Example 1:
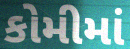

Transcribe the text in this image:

કોમીમાં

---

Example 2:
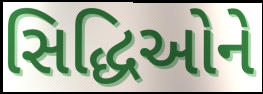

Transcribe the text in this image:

સિદ્ધિઓને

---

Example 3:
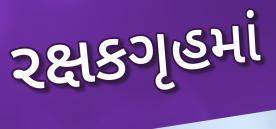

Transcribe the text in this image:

રક્ષકગૃહમાં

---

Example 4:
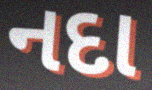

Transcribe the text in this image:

નદા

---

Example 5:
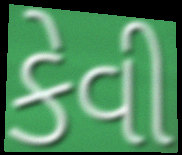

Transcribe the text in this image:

કેવી